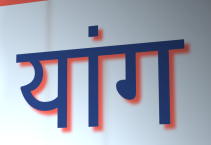
यांग